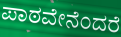
ಪಾಠವೇನೆಂದರೆ